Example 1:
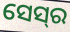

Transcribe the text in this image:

ସେସ୍‌ର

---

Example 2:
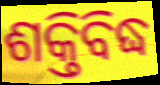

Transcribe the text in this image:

ଶକ୍ତିବିଦ୍ଧ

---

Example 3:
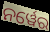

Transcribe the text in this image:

ନର୍ୱେର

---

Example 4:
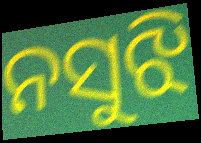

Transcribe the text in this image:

ନସୁଝି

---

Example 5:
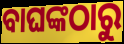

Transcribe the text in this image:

ବାଘଙ୍କଠାରୁ